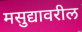
मसुद्यावरील